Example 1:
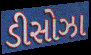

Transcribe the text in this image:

ડીસોઝા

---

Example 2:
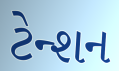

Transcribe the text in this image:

ટેન્શન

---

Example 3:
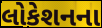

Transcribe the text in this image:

લોકેશનના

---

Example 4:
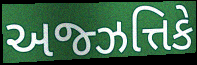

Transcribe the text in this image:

અજ્ઝત્તિકે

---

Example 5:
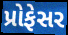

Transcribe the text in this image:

પ્રોફેસર